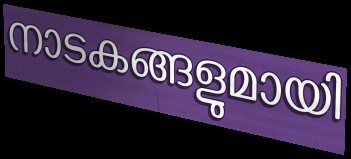
നാടകങ്ങളുമായി